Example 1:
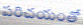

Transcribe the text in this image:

పరిచయంతో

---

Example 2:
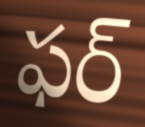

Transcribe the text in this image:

ఫర్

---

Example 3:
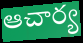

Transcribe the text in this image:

ఆచార్య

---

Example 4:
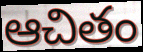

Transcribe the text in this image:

ఆచితం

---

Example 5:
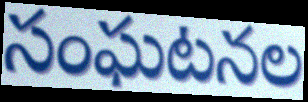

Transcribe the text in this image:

సంఘటనల